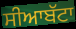
ਸੀਆਬੱਟਾ